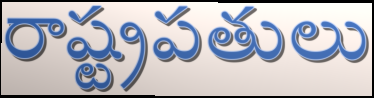
రాష్ట్రపతులు